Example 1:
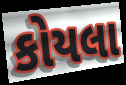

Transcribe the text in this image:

કોયલા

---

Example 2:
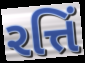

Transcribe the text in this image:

રત્તિં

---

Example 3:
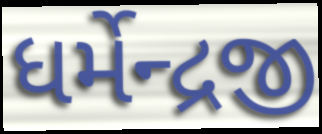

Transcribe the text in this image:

ધર્મેન્દ્રજી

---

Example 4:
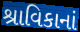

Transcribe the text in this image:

શ્રાવિકાનાં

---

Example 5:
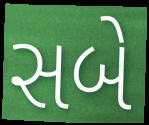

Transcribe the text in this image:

સબે